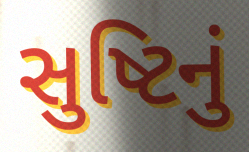
સુષ્ટિનું